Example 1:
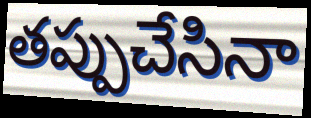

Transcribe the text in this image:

తప్పుచేసినా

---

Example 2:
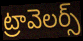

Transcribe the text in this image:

ట్రావెలర్స్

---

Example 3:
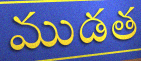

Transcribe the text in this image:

ముడత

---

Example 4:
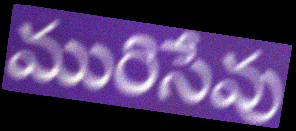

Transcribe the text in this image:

మురిసేవు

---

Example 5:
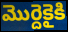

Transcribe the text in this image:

మొర్దెకైకి